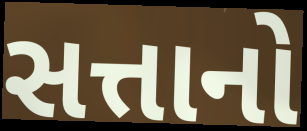
સત્તાનો